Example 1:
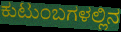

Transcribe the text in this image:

ಕುಟುಂಬಗಳಲ್ಲಿನ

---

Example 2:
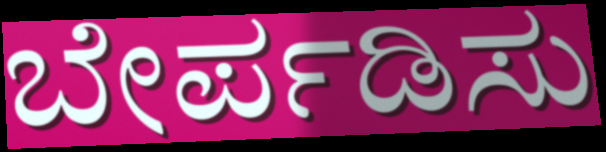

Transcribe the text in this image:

ಬೇರ್ಪಡಿಸು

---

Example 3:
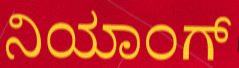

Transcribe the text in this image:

ನಿಯಾಂಗ್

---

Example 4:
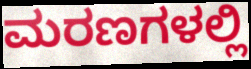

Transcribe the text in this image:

ಮರಣಗಳಲ್ಲಿ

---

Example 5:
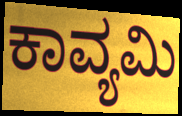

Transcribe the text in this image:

ಕಾವ್ಯಮಿ